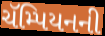
ચૅમ્પિયનની